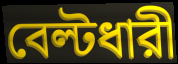
বেল্টধারী